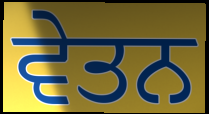
ਵੇਤਨ